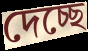
দেচ্ছে